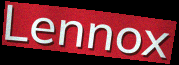
Lennox